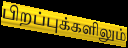
பிறப்புக்களிலும்